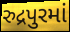
રુદ્રપુરમાં